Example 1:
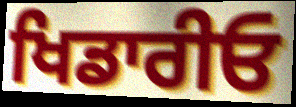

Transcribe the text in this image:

ਖਿਡਾਰੀਓ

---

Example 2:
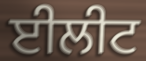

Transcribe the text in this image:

ਈਲੀਟ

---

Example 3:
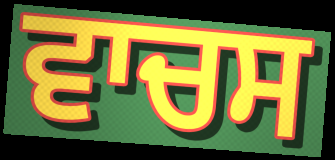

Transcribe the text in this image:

ਵਾਚਸ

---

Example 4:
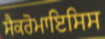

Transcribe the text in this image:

ਸੈਕਰੋਮਾਇਸਿਸ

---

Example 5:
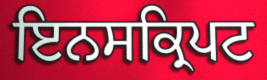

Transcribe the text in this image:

ਇਨਸਕ੍ਰਿਪਟ